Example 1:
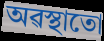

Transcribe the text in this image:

অৱস্থাতো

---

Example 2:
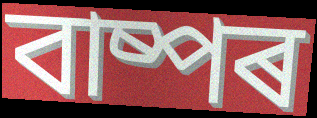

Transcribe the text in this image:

বাষ্পৰ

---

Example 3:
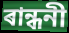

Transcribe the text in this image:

ৰান্ধনী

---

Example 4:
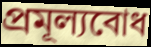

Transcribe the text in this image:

প্ৰমূল্যবোধ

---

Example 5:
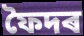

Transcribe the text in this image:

ফৈদৰ